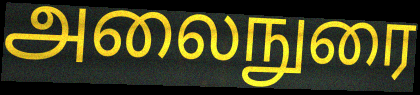
அலைநுரை